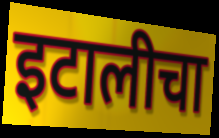
इटालीचा